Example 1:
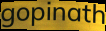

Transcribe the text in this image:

gopinath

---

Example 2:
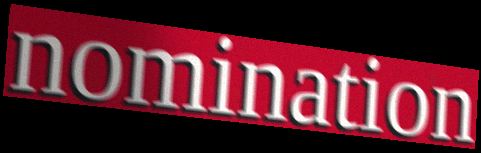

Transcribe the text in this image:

nomination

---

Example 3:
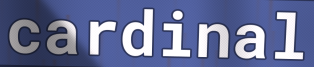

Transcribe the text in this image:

cardinal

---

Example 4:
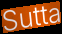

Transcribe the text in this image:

Sutta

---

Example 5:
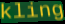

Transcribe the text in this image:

kling